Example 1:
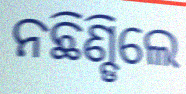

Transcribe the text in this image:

ନଛିଣ୍ଡିଲେ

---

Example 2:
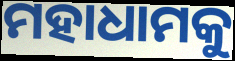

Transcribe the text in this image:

ମହାଧାମକୁ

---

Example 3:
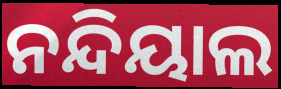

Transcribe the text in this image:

ନନ୍ଦିୟାଲ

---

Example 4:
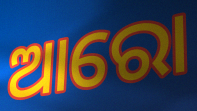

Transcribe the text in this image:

ଆରୋ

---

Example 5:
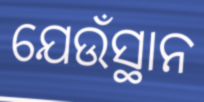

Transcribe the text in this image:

ଯେଉଁସ୍ଥାନ